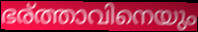
ഭര്ത്താവിനെയും